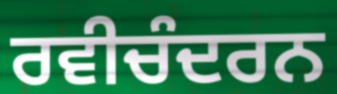
ਰਵੀਚੰਦਰਨ